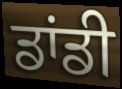
ਡਾਂਡੀ